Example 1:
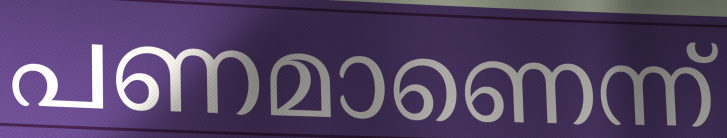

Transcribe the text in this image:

പണമാണെന്ന്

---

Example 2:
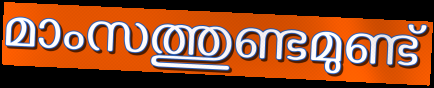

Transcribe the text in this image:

മാംസത്തുണ്ടമുണ്ട്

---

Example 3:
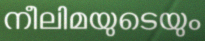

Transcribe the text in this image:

നീലിമയുടെയും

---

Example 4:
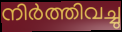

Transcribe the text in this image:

നിർത്തിവച്ചു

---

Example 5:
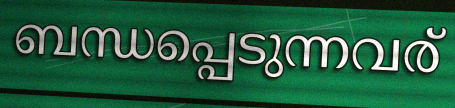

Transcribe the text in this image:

ബന്ധപ്പെടുന്നവര്